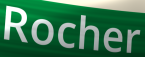
Rocher